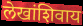
लेखांशिवाय